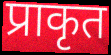
प्राकृत